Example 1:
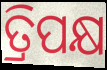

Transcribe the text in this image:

ତ୍ରିପକ୍ଷ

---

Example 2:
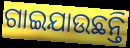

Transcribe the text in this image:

ଗାଇଯାଉଛନ୍ତି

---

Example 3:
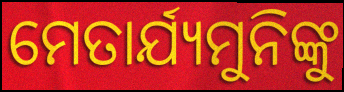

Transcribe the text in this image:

ମେତାର୍ଯ୍ୟମୁନିଙ୍କୁ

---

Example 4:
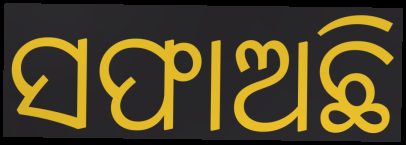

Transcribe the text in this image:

ସଫାଅଛି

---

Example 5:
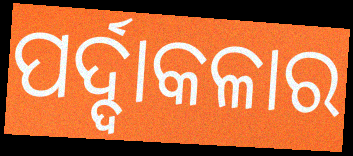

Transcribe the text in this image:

ପର୍ଦ୍ଦାକଳାର